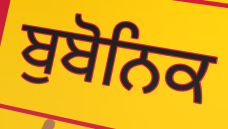
ਬੁਬੋਨਿਕ